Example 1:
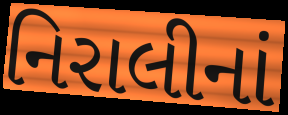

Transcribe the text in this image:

નિરાલીનાં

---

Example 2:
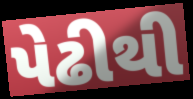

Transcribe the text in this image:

પેઢીથી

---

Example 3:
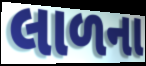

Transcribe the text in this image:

લાળના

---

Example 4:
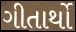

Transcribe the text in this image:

ગીતાર્થો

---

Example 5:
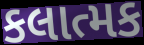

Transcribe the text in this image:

કલાત્મક